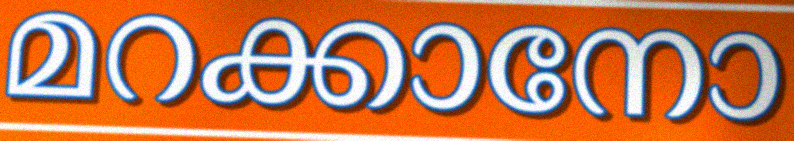
മറക്കാനോ